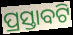
ପ୍ରସ୍ତାବଟି